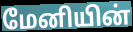
மேனியின்